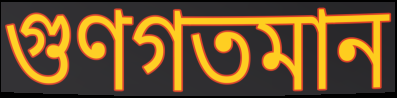
গুণগতমান